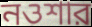
নওশার